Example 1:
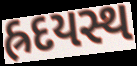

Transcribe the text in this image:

હ્રદયસ્થ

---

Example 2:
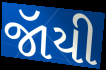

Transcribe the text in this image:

જૉયી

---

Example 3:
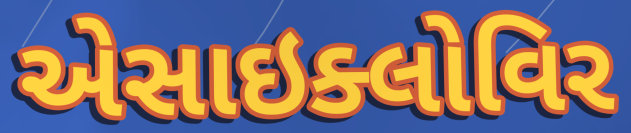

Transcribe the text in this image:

એસાઇક્લોવિર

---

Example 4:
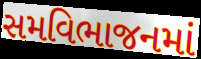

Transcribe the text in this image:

સમવિભાજનમાં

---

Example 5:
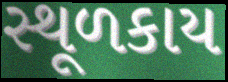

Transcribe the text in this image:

સ્થૂળકાય